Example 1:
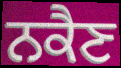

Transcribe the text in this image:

ਨਕੈਣ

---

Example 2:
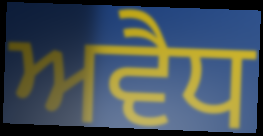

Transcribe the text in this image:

ਅਵੈਧ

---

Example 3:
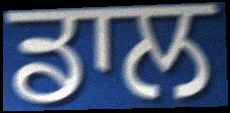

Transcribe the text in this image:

ਡਾਲ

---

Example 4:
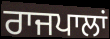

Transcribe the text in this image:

ਰਾਜਪਾਲਾਂ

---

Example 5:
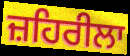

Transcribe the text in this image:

ਜ਼ਹਿਰੀਲਾ